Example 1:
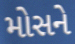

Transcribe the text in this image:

મોસને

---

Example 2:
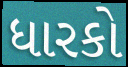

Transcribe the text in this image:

ધારકો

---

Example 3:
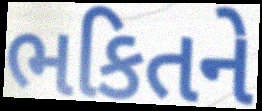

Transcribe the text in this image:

ભકિતને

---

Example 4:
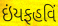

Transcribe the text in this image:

ઇંયફહવિં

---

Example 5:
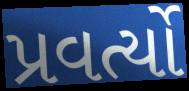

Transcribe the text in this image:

પ્રવર્ત્યો